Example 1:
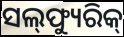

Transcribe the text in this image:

ସଲ୍‌ଫ୍ୟୁରିକ୍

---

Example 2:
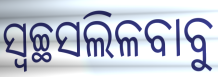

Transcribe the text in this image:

ସ୍ୱଚ୍ଛସଲିଳବାବୁ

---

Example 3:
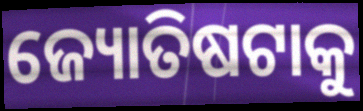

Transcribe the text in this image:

ଜ୍ୟୋତିଷଟାକୁ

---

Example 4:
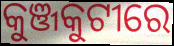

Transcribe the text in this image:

କୁଞ୍ଜକୁଟୀରେ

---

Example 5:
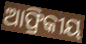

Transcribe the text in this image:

ଆଫ୍ରିକୀୟ